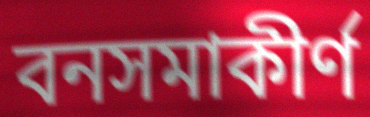
বনসমাকীর্ণ